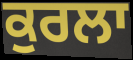
ਕੁਰਲਾ